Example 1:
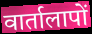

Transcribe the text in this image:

वार्तालापों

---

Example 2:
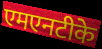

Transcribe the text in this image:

एमएनटीके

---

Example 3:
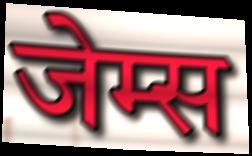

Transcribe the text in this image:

जेम्स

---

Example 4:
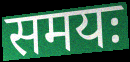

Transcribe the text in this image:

समयः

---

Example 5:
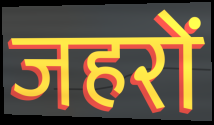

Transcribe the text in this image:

जहरों